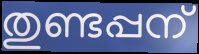
തുണ്ടപ്പന്